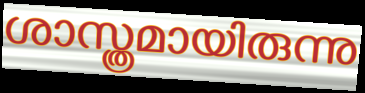
ശാസ്ത്രമായിരുന്നു